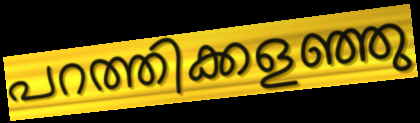
പറത്തിക്കളഞ്ഞു